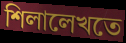
শিলালেখতে